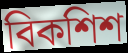
বিকশিশ